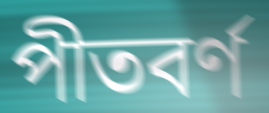
পীতবর্ণ